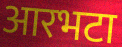
आरभटा